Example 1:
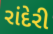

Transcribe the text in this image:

રાંદેરી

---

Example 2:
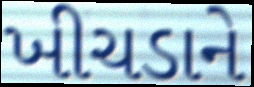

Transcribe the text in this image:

ખીચડાને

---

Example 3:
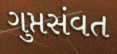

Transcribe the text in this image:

ગુપ્તસંવત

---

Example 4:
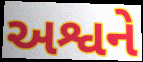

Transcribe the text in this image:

અશ્વને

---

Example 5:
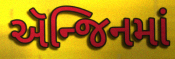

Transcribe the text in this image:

ઍન્જિનમાં